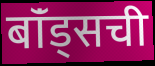
बॉंड्सची